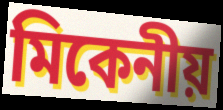
মিকেনীয়